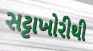
સટ્ટાખોરીથી